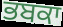
ਭਬਕਾ